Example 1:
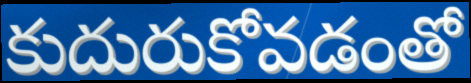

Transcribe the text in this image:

కుదురుకోవడంతో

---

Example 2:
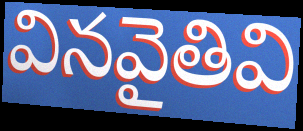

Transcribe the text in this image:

వినవైతివి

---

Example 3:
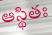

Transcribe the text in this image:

ఆస్థితః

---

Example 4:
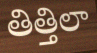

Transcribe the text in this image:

తిత్తిలా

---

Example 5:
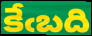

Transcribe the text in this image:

కేఁబది